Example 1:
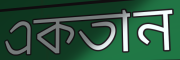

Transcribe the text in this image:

একতান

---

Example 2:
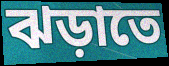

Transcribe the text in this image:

ঝড়াতে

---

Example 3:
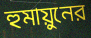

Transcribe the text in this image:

হুমায়ুনের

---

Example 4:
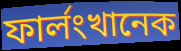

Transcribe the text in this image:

ফার্লংখানেক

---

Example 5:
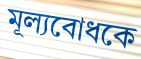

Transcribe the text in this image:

মূল্যবোধকে